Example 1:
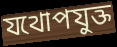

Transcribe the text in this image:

যথোপযুক্ত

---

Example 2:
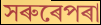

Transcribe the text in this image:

সৰুৰেপৰা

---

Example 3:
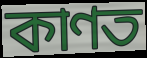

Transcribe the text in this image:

কাণত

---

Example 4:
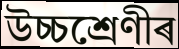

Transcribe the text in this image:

উচ্চশ্ৰেণীৰ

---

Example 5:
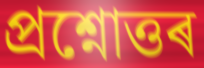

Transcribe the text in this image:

প্ৰশ্নোত্তৰ